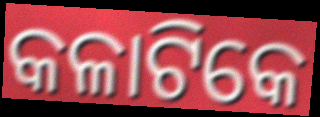
କଳାଟିକେ